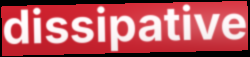
dissipative